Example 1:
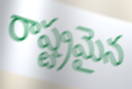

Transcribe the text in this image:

రాష్ట్రమైన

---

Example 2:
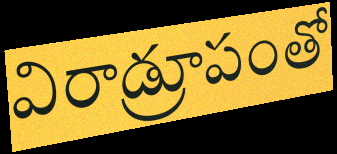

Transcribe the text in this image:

విరాడ్రూపంతో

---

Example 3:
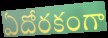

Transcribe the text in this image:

ఏదోరకంగా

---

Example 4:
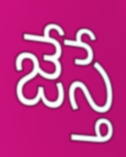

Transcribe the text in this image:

జేస్తే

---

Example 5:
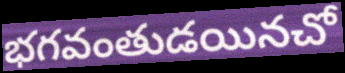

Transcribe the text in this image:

భగవంతుడయినచో